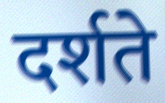
दर्शते